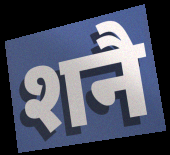
शनै